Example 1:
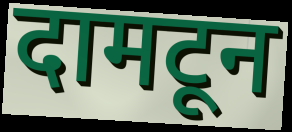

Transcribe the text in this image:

दामटून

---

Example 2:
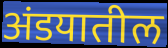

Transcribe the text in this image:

अंडयातील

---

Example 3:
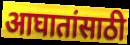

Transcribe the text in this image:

आघातांसाठी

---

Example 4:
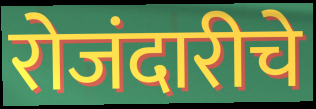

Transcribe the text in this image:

रोजंदारीचे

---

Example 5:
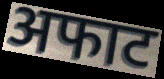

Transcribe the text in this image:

अफाट